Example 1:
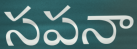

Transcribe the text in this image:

సపనా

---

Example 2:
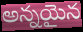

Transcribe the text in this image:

అన్నయైన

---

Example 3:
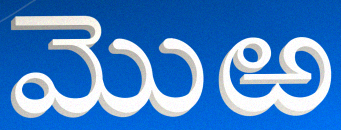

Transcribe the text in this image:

మొఱ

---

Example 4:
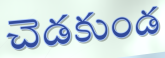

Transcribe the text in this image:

చెడకుండ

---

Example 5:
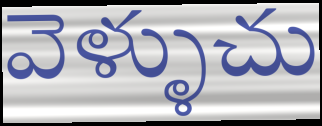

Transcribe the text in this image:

వెళ్ళుచు